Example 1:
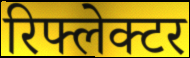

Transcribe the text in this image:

रिफ्लेक्टर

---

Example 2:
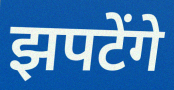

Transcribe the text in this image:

झपटेंगे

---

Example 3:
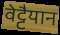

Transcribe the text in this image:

वेट्टैयान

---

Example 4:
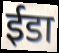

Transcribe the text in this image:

ईडा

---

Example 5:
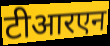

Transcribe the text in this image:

टीआरएन